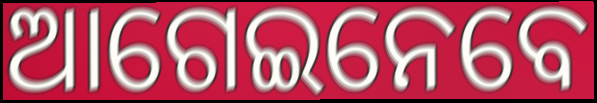
ଆଗେଇନେବେ